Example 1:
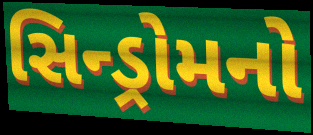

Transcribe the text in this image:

સિન્ડ્રોમનો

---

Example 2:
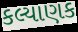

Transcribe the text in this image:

કલ્યાણક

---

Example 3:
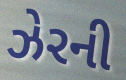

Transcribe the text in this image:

ઝેરની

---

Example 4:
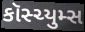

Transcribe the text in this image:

કૉસ્ચ્યુમ્સ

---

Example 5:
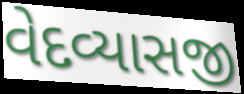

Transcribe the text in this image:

વેદવ્યાસજી